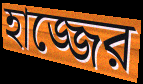
হাজ্জের